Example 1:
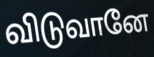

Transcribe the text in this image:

விடுவானே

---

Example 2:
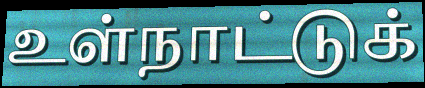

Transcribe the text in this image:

உள்நாட்டுக்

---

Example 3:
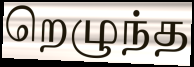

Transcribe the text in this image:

றெழுந்த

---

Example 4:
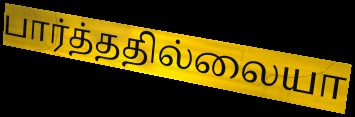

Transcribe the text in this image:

பார்த்ததில்லையா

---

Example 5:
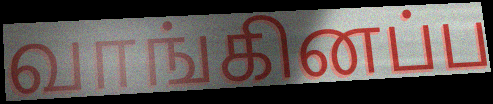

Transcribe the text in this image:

வாங்கினப்ப